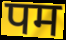
पम